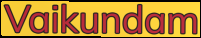
Vaikundam